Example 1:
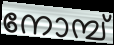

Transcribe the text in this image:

നോമ്പ്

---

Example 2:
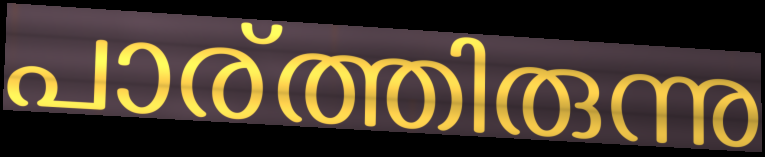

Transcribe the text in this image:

പാര്ത്തിരുന്നു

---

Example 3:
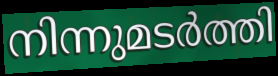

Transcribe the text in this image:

നിന്നുമടർത്തി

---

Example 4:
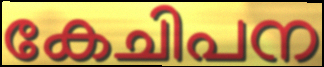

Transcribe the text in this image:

കേചിപന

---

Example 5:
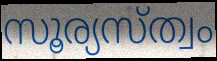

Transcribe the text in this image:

സൂര്യസ്ത്വം